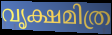
വൃക്ഷമിത്ര